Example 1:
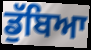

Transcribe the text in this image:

ਡੁੱਬਿਆ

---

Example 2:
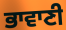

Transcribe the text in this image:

ਭਾਵਾਣੀ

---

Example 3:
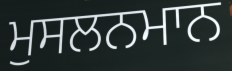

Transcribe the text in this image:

ਮੁਸਲਨਮਾਨ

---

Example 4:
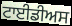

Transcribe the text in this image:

ਟਾਈਡੀਅਸ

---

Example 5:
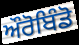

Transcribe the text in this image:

ਔਰੋਬਿੰਡੋ